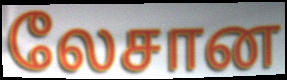
லேசான